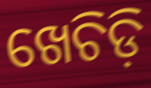
ଖେଚିଡ଼ି